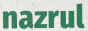
nazrul